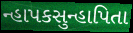
ન્હાપકસુન્હાપિતા